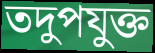
তদুপযুক্ত